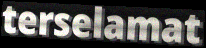
terselamat